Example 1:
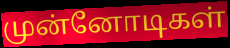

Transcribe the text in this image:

முன்னோடிகள்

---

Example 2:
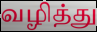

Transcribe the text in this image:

வழித்து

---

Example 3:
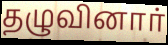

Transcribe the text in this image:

தழுவினார்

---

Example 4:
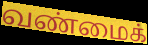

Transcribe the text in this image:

வண்மைக்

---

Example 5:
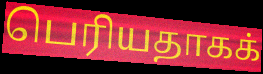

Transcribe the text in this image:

பெரியதாகக்